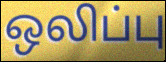
ஒலிப்பு